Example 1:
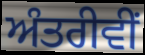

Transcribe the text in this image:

ਅੰਤਰੀਵੀਂ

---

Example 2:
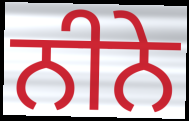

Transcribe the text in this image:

ਨੀਨੇ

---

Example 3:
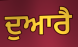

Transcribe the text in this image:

ਦੁਆਰੈ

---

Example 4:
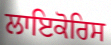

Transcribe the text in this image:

ਲਾਇਕੋਰਿਸ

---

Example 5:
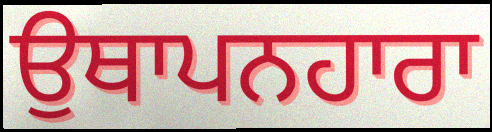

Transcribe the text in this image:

ਉਥਾਪਨਹਾਰਾ